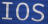
IOS